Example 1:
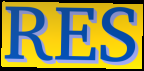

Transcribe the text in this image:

RES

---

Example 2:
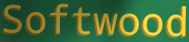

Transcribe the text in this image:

Softwood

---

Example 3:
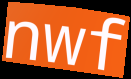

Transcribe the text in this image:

nwf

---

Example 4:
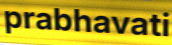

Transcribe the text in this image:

prabhavati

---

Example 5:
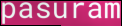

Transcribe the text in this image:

pasuram